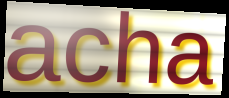
acha